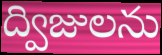
ద్విజులను